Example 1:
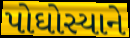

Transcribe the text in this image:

પોઘોસ્યાને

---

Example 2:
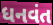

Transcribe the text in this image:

ધનવંત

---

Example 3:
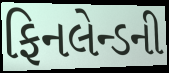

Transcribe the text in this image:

ફિનલેન્ડની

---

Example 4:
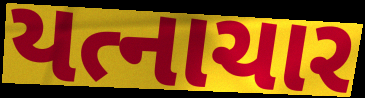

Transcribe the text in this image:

યત્નાચાર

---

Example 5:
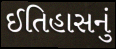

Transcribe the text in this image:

ઈતિહાસનું